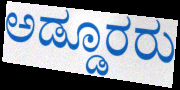
ಅಡ್ಡೂರರು